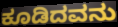
ಕೂಡಿದವನು